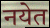
नयेत